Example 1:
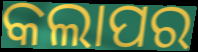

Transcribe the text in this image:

କଲାପର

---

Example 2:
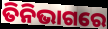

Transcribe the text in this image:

ତିନିଭାଗରେ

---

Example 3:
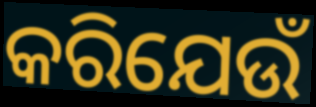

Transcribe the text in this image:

କରିଯେଉଁ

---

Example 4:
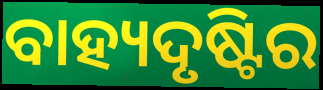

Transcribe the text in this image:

ବାହ୍ୟଦୃଷ୍ଟିର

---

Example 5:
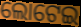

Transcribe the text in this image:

ଲୋଟେଇ